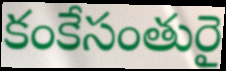
కంకేసంతురై